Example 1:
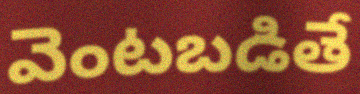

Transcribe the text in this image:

వెంటబడితే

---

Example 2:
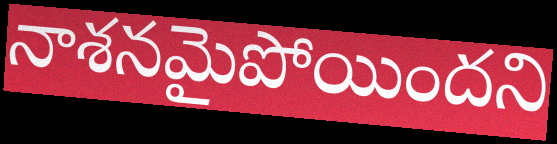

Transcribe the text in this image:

నాశనమైపోయిందని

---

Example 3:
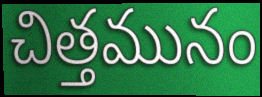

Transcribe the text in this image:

చిత్తమునం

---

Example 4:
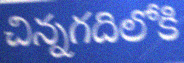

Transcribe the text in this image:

చిన్నగదిలోకి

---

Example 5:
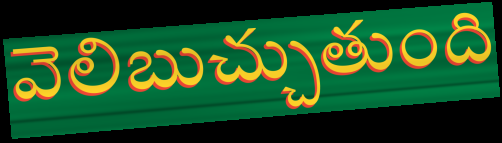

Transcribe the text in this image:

వెలిబుచ్చుతుంది